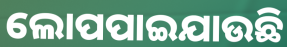
ଲୋପପାଇଯାଉଛି